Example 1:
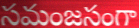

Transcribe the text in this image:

సమంజసంగా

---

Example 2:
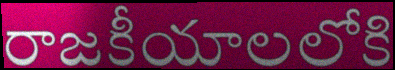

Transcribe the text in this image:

రాజకీయాలలోకి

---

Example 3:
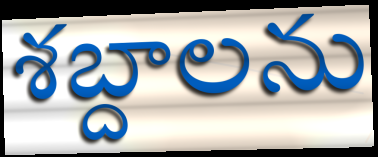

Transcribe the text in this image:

శబ్దాలను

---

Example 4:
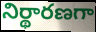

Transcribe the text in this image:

నిర్థారణగా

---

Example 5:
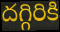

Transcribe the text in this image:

దగ్గిరికి